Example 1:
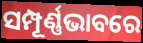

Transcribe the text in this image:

ସମ୍ପୂର୍ଣ୍ଣଭାବରେ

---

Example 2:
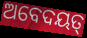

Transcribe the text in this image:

ଅବେଦୟତ୍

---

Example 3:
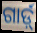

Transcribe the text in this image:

ଗାର୍ଡ଼୍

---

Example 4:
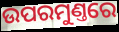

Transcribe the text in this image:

ଉପରମୁଣ୍ତରେ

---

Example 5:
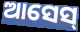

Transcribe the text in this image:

ଆସେସ୍